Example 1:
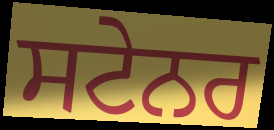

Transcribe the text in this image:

ਸਟੇਨਰ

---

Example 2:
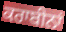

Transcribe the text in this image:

ਕਰਾਬੀਨਾਂ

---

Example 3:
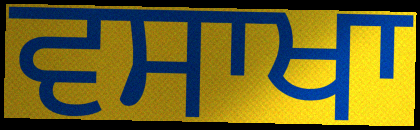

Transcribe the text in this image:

ਵਸਾਖਾ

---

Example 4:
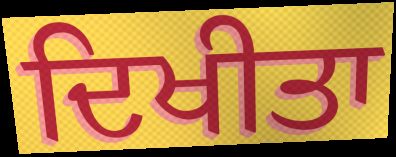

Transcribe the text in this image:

ਦਿਖੀਤਾ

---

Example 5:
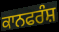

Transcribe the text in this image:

ਕਾਨਫਰੰਸ਼